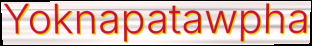
Yoknapatawpha